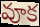
వూక